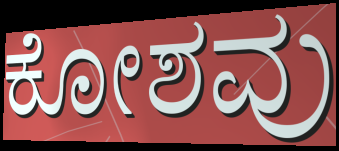
ಕೋಶವು